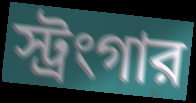
স্ট্রংগার